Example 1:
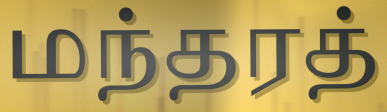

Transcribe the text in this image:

மந்தரத்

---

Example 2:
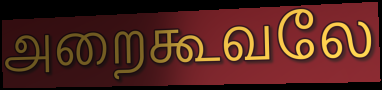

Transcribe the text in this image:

அறைகூவலே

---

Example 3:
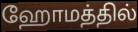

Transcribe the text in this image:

ஹோமத்தில்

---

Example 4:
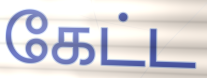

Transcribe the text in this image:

கேட்ட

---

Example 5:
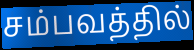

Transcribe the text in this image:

சம்பவத்தில்